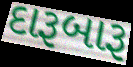
દારૂબારૂ